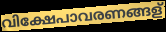
വിക്ഷേപാവരണങ്ങള്